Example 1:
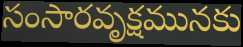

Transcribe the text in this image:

సంసారవృక్షమునకు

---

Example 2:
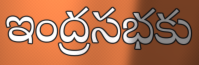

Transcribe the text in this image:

ఇంద్రసభకు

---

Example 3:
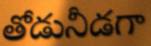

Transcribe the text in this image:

తోడునీడగా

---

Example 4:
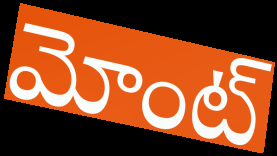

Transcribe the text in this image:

మోంట్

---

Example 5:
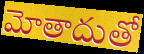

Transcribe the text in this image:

మోతాదుతో